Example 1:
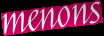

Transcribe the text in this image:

menons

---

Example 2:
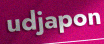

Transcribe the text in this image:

udjapon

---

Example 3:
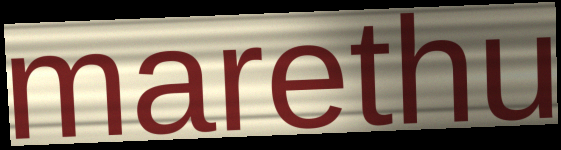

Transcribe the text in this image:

marethu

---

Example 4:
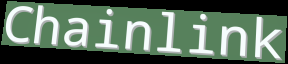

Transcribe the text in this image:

Chainlink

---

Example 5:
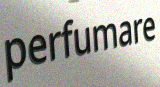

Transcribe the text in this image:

perfumare